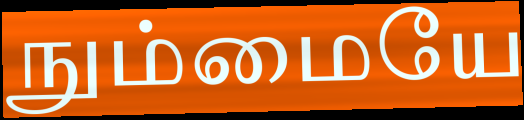
நும்மையே